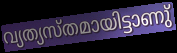
വ്യത്യസ്തമായിട്ടാണു്